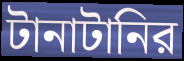
টানাটানির